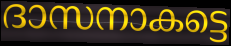
ദാസനാകട്ടെ